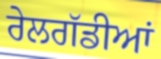
ਰੇਲਗੱਡੀਆਂ